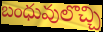
బంధువులొచ్చి